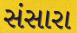
સંસારા